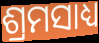
ଶ୍ରମସାଧ୍ୟ